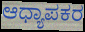
ಆಧ್ಯಾಪಕರ